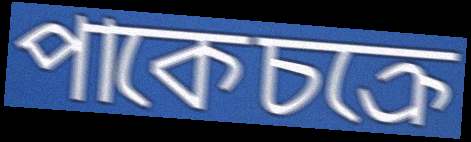
পাকেচক্রে